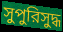
সুপুরিসুদ্ধ